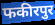
फकीरपुर